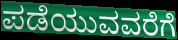
ಪಡೆಯುವವರೆಗೆ